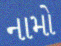
નામો